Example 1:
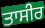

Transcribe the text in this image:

ਤਾਸੀਰ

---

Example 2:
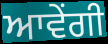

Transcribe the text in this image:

ਆਵੇਂਗੀ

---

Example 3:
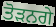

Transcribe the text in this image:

ਤੋੜਨਗੇ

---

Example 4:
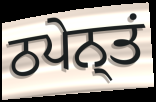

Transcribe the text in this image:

ਠਪੇਨ੍ਤਂ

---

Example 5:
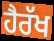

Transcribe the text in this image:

ਹੈਰੱਖ